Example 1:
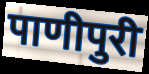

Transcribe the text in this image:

पाणीपुरी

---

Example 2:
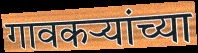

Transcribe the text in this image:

गावकर्‍यांच्या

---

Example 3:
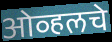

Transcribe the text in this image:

ओव्हलचे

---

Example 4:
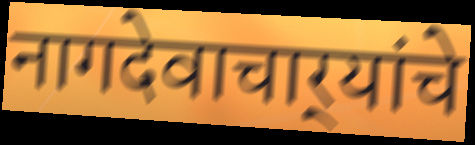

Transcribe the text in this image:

नागदेवाचार्यांचे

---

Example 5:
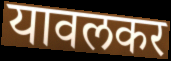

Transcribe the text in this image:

यावलकर